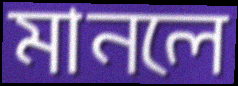
মানলে